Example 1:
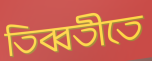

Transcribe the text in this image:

তিব্বতীতে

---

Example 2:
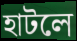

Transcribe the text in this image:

হাটলে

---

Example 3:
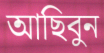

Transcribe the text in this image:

আছিবুন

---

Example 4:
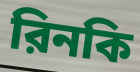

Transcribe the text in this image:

রিনকি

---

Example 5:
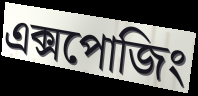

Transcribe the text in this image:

এক্সপোজিং